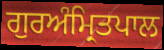
ਗੁਰਅੰਮ੍ਰਿਤਪਾਲ